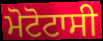
ਮੋਟੋਟਾਸੀ